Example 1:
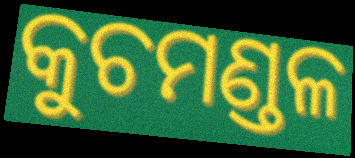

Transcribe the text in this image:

କୁଚମଣ୍ଡଳ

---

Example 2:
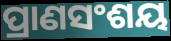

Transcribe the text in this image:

ପ୍ରାଣସଂଶୟ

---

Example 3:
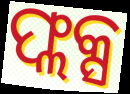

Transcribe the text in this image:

ଫ୍ଲକ୍ସ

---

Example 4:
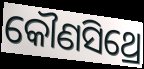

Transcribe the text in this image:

କୌଣସିଥ୍ରେ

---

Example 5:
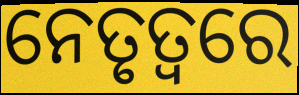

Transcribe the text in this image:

ନେତୃତ୍ଵରେ